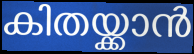
കിതയ്ക്കാൻ